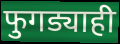
फुगड्याही